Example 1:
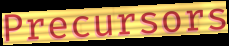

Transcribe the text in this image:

Precursors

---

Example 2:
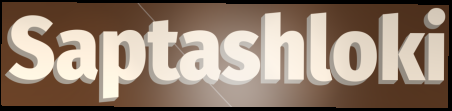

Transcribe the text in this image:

Saptashloki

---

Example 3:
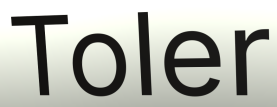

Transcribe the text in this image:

Toler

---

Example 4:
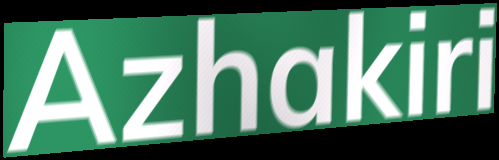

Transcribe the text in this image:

Azhakiri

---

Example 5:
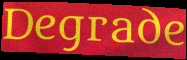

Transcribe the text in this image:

Degrade